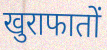
खुराफातों